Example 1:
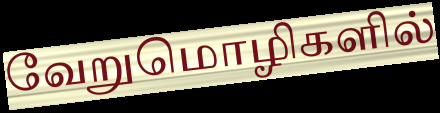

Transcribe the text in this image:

வேறுமொழிகளில்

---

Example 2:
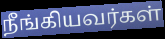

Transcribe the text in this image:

நீங்கியவர்கள்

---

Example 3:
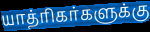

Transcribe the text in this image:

யாத்ரிகர்களுக்கு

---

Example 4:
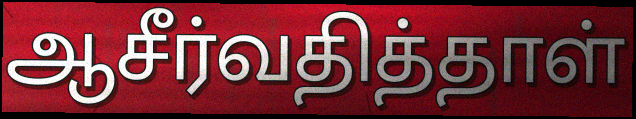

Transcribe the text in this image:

ஆசீர்வதித்தாள்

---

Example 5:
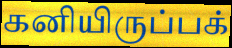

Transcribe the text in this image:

கனியிருப்பக்